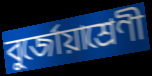
বুর্জোয়াশ্রেণী